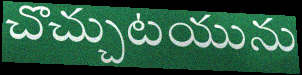
చొచ్చుటయును